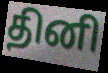
தினி